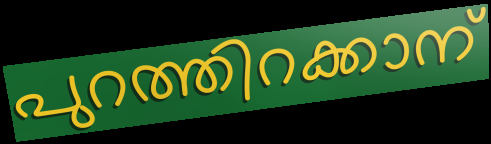
പുറത്തിറക്കാന്